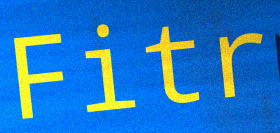
Fitr